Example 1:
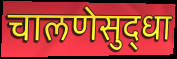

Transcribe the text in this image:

चालणेसुद्धा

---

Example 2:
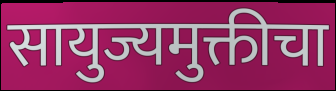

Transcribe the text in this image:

सायुज्यमुक्तीचा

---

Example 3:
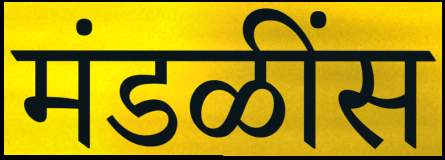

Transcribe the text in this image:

मंडळींस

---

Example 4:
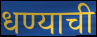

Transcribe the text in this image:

धण्याची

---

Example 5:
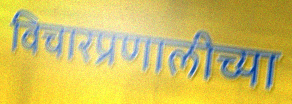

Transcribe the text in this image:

विचारप्रणालीच्या